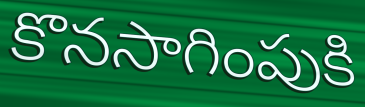
కొనసాగింపుకి